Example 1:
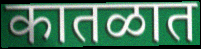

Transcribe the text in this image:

कातळात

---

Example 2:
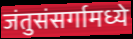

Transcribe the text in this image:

जंतुसंसर्गामध्ये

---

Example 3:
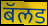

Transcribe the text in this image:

बॅलड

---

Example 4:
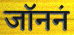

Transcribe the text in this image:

जॉननं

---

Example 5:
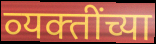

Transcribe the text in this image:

व्‍यक्‍तींच्‍या